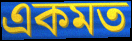
একমত